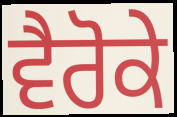
ਵੈਰੋਕੇ